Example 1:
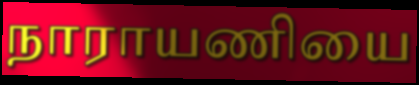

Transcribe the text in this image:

நாராயணியை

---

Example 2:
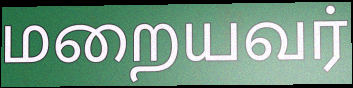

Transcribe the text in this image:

மறையவர்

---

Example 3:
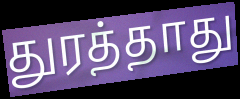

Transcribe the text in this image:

துரத்தாது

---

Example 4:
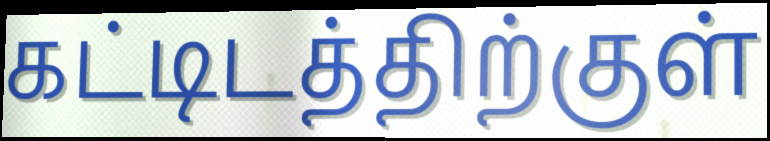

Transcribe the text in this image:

கட்டிடத்திற்குள்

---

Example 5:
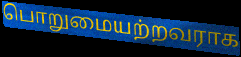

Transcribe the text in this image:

பொறுமையற்றவராக